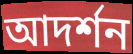
আদর্শন